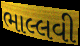
ભાલ્લવી